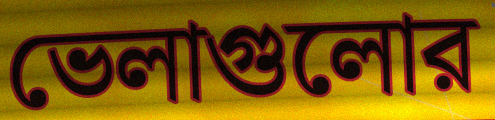
ভেলাগুলোর